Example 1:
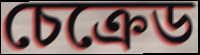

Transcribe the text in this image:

চেক্ৰেড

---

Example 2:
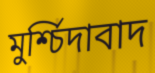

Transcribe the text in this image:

মুৰ্শ্চিদাবাদ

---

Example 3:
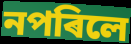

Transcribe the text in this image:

নপৰিলে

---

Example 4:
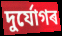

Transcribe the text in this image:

দুৰ্যোগৰ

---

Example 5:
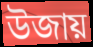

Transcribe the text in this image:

উজায়